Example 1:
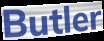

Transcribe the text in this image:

Butler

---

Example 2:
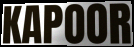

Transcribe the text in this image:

KAPOOR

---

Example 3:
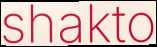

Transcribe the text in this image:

shakto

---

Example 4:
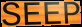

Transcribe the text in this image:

SEEP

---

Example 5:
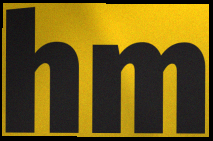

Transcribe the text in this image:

hm